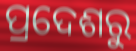
ପ୍ରଦେଶରୁ